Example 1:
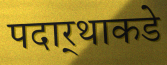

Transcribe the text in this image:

पदार्थाकडे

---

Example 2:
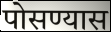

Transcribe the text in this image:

पोसण्यास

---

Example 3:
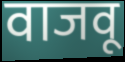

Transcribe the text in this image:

वाजवू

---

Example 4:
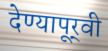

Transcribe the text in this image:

देण्यापूर्वी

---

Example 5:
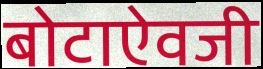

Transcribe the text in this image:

बोटाऐवजी